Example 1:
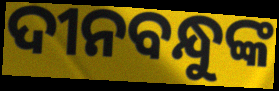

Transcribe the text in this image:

ଦୀନବନ୍ଧୁଙ୍କ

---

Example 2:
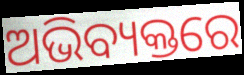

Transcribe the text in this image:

ଅଭିବ୍ୟକ୍ତରେ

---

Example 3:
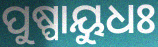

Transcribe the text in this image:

ପୁଷ୍ପାୟୁଧଃ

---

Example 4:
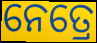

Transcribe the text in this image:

ନେତ୍ରେ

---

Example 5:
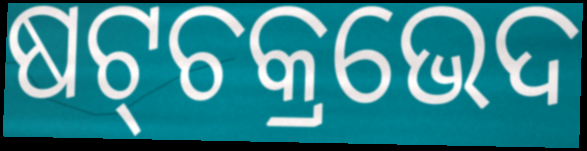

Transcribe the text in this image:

ଷଟ୍‌ଚକ୍ରଭେଦ